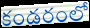
కండరంలో